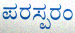
ಪರಸ್ಪರಂ